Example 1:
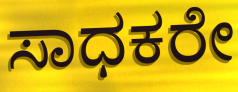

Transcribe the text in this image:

ಸಾಧಕರೇ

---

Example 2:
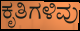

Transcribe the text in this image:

ಕೃತಿಗಳಿವು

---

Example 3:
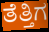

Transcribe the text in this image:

ತೆತ್ತಿಗ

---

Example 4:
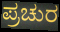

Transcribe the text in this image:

ಪ್ರಚುರ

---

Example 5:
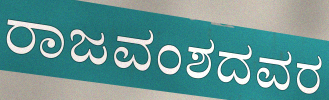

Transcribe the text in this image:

ರಾಜವಂಶದವರ